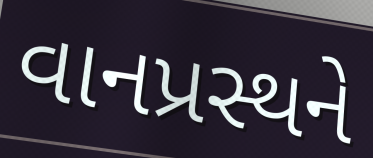
વાનપ્રસ્થને